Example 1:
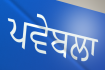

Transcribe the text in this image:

ਪਵੇਬਲਾ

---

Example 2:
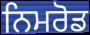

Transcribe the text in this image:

ਨਿਮਰੋਡ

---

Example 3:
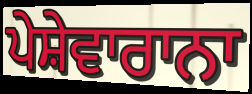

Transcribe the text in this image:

ਪੇਸ਼ੇਵਾਰਾਨਾ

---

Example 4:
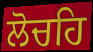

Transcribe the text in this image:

ਲੋਚਹਿ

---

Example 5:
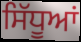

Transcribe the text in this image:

ਸਿੱਧੂਆਂ